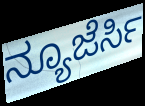
ನ್ಯೂಜೆರ್ಸಿ